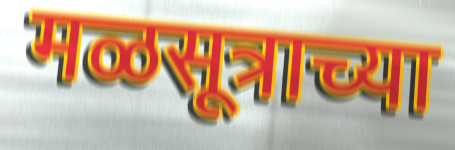
मळसूत्राच्या